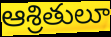
ఆశ్రితులూ